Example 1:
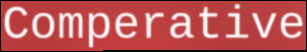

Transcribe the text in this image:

Comperative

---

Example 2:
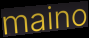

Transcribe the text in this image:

maino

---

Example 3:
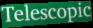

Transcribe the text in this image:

Telescopic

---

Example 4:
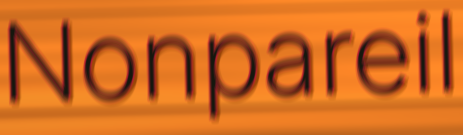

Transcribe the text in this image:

Nonpareil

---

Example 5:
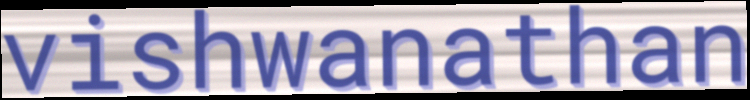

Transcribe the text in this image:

vishwanathan